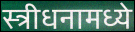
स्त्रीधनामध्ये